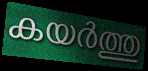
കയർത്തു